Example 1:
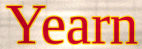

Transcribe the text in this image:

Yearn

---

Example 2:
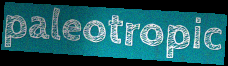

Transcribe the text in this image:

paleotropic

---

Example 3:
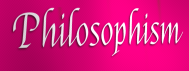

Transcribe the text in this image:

Philosophism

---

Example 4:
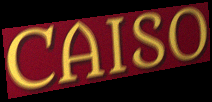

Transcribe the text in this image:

CAISO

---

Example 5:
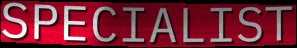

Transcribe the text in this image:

SPECIALIST